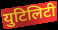
युटिलिटी